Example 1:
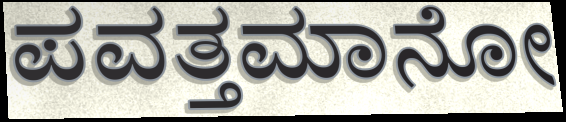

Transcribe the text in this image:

ಪವತ್ತಮಾನೋ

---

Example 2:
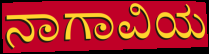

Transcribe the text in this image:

ನಾಗಾವಿಯ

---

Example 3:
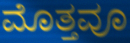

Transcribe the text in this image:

ಮೊತ್ತವೂ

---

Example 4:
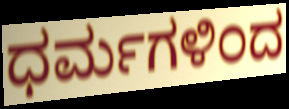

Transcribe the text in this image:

ಧರ್ಮಗಳಿಂದ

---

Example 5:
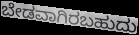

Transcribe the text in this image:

ಬೇಡವಾಗಿರಬಹುದು